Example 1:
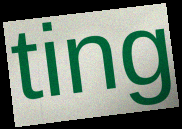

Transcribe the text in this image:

ting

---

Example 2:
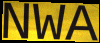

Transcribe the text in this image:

NWA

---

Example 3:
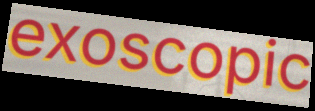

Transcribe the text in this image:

exoscopic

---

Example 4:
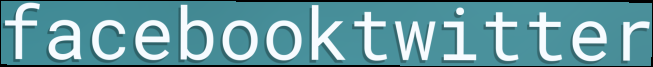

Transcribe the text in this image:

facebooktwitter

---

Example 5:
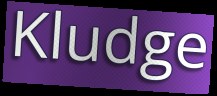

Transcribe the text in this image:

Kludge